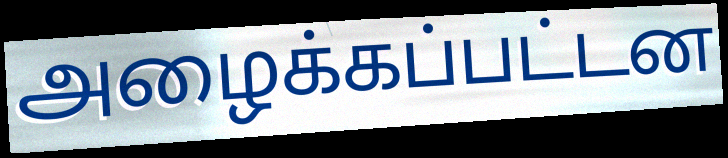
அழைக்கப்பட்டன